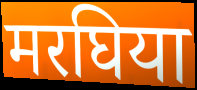
मरघिया